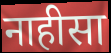
नाहीसा